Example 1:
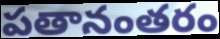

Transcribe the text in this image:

పతానంతరం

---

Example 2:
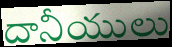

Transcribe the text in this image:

దానీయులు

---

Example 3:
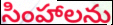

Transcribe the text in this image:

సింహాలను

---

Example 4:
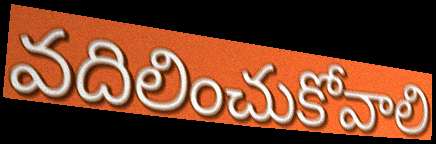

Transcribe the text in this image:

వదిలించుకోవాలి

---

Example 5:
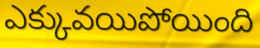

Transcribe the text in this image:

ఎక్కువయిపోయింది